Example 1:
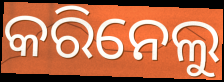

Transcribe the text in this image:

କରିନେଲୁ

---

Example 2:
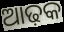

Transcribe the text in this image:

ଆଢ଼କ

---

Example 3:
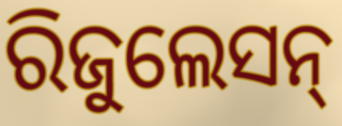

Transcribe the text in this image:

ରିଜୁଲେସନ୍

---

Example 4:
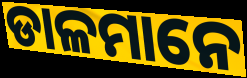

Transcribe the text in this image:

ଡାଳମାନେ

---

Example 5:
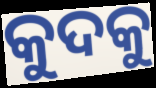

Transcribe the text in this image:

କୁଦକୁ